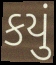
કયું